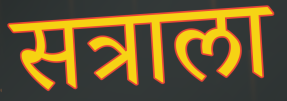
सत्राला